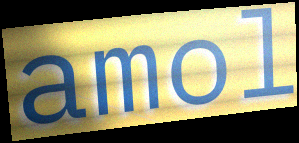
amol